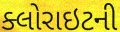
ક્લોરાઇટની